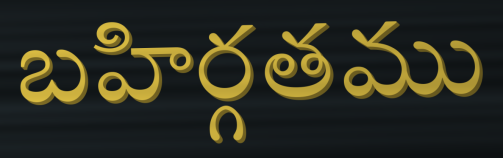
బహిర్గతము